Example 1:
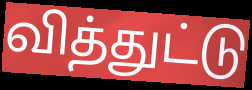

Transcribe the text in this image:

வித்துட்டு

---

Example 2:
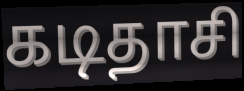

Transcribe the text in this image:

கடிதாசி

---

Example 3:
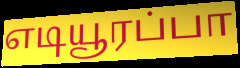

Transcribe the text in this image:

எடியூரப்பா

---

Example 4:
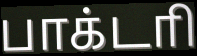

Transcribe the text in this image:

பாக்டரி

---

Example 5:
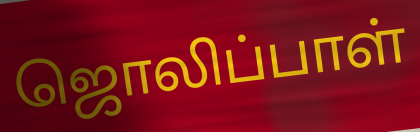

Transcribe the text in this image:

ஜொலிப்பாள்